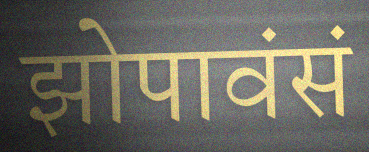
झोपावंसं